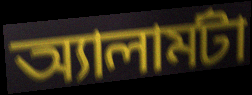
অ্যালার্মটা